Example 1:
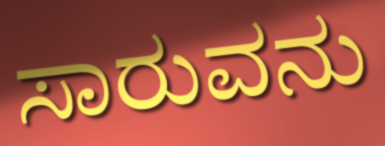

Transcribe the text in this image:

ಸಾರುವನು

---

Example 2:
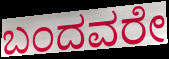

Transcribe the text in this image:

ಬಂದವರೇ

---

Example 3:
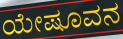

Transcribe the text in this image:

ಯೇಷೂವನ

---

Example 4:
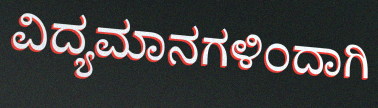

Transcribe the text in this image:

ವಿದ್ಯಮಾನಗಳಿಂದಾಗಿ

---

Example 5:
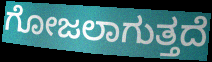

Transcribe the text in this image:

ಗೋಜಲಾಗುತ್ತದೆ